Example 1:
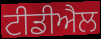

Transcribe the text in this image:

ਟੀਡੀਐਲ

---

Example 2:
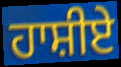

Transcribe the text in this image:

ਹਾਸ਼ੀਏ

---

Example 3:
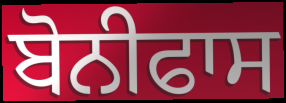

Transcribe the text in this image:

ਬੋਨੀਫਾਸ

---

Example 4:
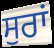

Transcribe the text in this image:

ਸੁਰਾਂ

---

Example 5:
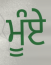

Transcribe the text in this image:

ਮੂੰਏ